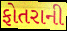
ફોતરાની